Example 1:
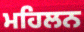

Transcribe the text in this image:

ਮਹਿਲਨ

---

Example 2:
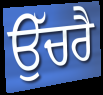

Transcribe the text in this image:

ਉੱਚਰੈ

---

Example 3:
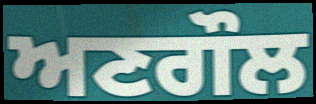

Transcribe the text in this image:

ਅਣਗੌਲ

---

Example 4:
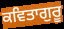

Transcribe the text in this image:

ਕਵਿਤਾਗੁਰੂ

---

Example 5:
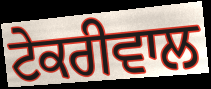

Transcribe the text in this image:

ਟੇਕਰੀਵਾਲ